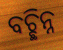
ବଚ୍ଛିନ୍ନ